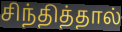
சிந்தித்தால்